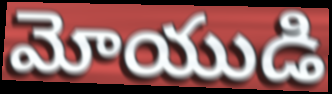
మోయుడి